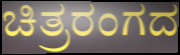
ಚಿತ್ರರಂಗದ